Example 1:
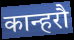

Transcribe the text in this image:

कान्हरौ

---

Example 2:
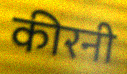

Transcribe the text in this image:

कीरनी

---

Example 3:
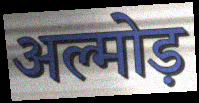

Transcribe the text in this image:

अल्मोड़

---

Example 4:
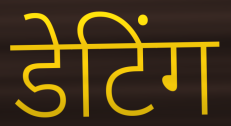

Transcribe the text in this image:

डेटिंग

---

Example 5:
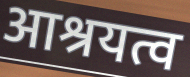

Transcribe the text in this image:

आश्रयत्व